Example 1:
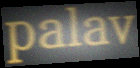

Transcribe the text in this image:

palav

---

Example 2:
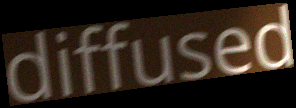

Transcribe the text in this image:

diffused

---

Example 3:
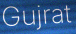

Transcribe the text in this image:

Gujrat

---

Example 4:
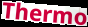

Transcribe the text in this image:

Thermo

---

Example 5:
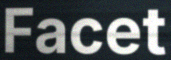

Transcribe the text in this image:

Facet